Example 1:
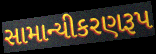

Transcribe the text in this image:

સામાન્યીકરણરૂપ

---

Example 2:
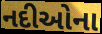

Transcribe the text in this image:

નદીઓના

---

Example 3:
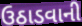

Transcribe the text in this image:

ઉઠાડવાની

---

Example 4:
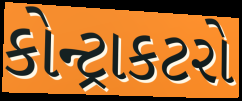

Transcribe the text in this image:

કોન્ટ્રાકટરો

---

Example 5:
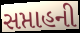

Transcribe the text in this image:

સપ્તાહની